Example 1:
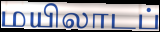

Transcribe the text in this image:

மயிலாடப்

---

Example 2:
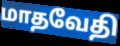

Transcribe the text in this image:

மாதவேதி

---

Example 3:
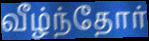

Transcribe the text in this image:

வீழ்ந்தோர்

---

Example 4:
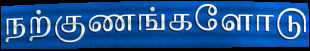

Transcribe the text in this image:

நற்குணங்களோடு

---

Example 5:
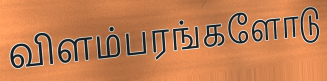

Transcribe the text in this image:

விளம்பரங்களோடு